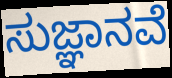
ಸುಜ್ಞಾನವೆ